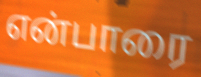
என்பாரை